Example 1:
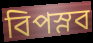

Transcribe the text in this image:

বিপস্নব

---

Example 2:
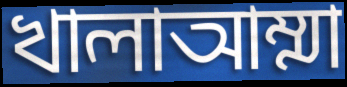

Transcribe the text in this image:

খালাআম্মা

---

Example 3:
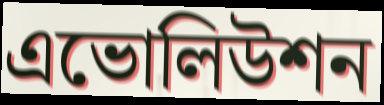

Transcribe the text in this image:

এভোলিউশন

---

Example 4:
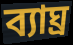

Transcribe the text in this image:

ব্যাঘ্র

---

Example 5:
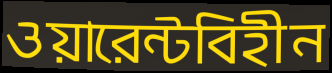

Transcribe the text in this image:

ওয়ারেন্টবিহীন